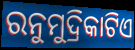
ରନୁମୁଦ୍ରିକାଟିଏ